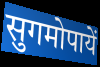
सुगमोपायें